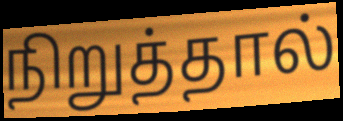
நிறுத்தால்